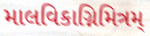
માલવિકાગ્નિમિત્રમ્